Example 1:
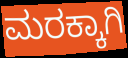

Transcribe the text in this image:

ಮರಕ್ಕಾಗಿ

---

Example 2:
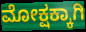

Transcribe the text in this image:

ಮೋಕ್ಷಕ್ಕಾಗಿ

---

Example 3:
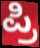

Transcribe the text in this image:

ಪ್ರಿ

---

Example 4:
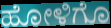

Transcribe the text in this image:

ಹೋಳಿಗೊ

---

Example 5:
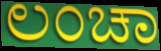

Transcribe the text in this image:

ಲಂಚಾ